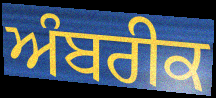
ਅੰਬਰੀਕ